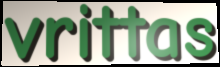
vrittas